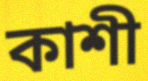
কাশী